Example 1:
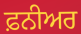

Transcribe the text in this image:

ਫ਼ਨੀਅਰ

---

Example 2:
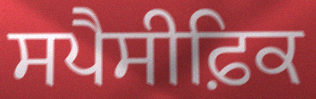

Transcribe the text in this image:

ਸਪੈਸੀਫ਼ਿਕ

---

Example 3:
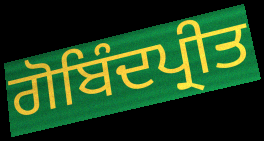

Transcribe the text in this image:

ਗੋਬਿੰਦਪ੍ਰੀਤ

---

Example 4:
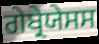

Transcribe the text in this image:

ਗੇਬ੍ਰੇਯੇਸਸ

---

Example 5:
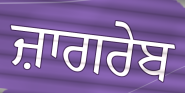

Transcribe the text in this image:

ਜ਼ਾਗਰੇਬ